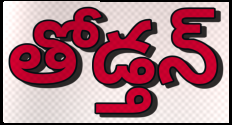
తోడ్తన్